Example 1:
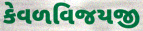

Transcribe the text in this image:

કેવળવિજયજી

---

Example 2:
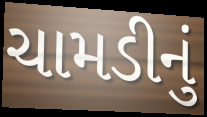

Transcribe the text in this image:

ચામડીનું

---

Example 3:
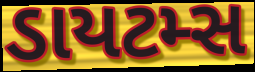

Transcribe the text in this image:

ડાયટમ્સ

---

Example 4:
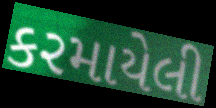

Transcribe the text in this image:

કરમાયેલી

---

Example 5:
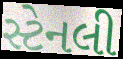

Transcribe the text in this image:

સ્ટેનલી